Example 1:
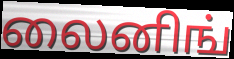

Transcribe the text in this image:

லைனிங்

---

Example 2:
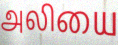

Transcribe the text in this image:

அலியை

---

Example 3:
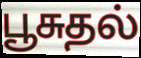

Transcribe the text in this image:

பூசுதல்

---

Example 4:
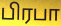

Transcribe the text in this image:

பிரபா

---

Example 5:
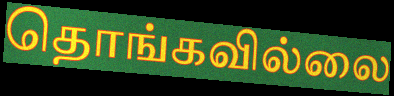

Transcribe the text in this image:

தொங்கவில்லை